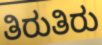
ತಿರುತಿರು